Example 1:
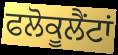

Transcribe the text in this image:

ਫਲੋਕੂਲੈਂਟਾਂ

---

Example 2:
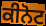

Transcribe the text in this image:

ਕੀਨੋਟ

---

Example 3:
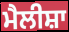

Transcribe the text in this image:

ਮੈਲੀਸ਼ਾ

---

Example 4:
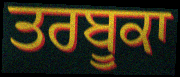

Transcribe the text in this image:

ਤਰਬੂਕਾ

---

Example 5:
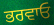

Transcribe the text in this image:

ਭਰਵਾਓ